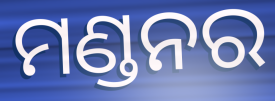
ମଣ୍ଡନର